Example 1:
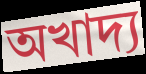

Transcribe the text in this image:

অখাদ্য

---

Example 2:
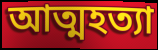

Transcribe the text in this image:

আত্মহত্যা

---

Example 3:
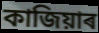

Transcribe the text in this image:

কাজিয়াৰ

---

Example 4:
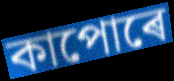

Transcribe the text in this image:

কাপোৰে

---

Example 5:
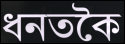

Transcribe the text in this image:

ধনতকৈ